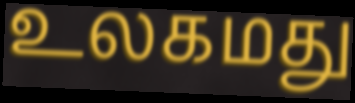
உலகமது